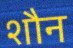
शौन